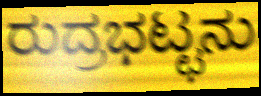
ರುದ್ರಭಟ್ಟನು